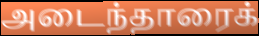
அடைந்தாரைக்